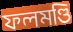
ফলমণ্ডি